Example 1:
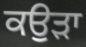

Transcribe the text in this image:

ਕਉੜਾ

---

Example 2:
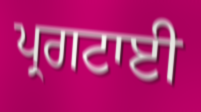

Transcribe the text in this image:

ਪ੍ਰਗਟਾਈ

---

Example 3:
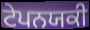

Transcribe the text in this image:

ਟੇਪਨਯਕੀ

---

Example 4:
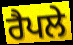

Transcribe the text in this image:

ਰੈਪਲੇ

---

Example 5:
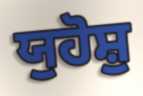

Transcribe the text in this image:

ਯੁਹੋਸ਼ੁ